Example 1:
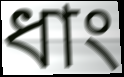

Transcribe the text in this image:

ধাং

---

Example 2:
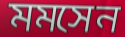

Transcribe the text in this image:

মমসেন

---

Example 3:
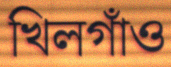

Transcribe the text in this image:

খিলগাঁও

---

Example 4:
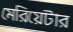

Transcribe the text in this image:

মেরিয়েটার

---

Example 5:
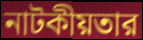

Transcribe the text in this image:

নাটকীয়তার